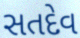
સતદેવ